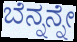
ಬೆನ್ನನ್ನೇ